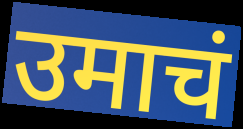
उमाचं